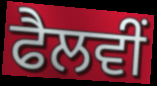
ਫੈਲਵੀਂ